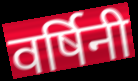
वर्षिनी